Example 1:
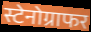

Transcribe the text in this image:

स्टेनोग्राफर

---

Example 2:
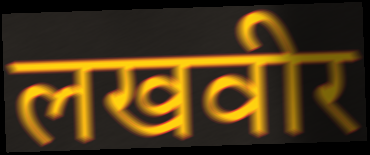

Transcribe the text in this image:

लखवीर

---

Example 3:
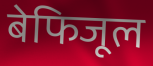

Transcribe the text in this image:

बेफिजूल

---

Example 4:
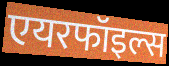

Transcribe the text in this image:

एयरफॉइल्स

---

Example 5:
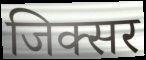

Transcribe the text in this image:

जिक्सर